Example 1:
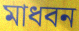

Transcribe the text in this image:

মাধবন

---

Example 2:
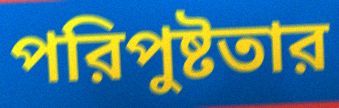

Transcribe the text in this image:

পরিপুষ্টতার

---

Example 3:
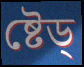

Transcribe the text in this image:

ষ্টেড্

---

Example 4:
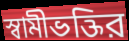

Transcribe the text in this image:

স্বামীভক্তির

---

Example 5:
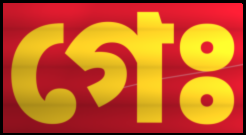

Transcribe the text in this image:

গেঃ